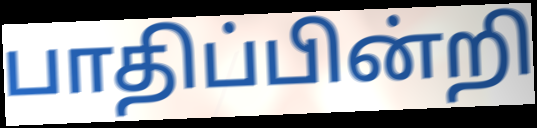
பாதிப்பின்றி